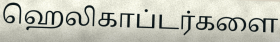
ஹெலிகாப்டர்களை